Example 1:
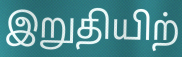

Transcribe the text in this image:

இறுதியிற்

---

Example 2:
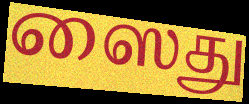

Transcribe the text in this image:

ஸைது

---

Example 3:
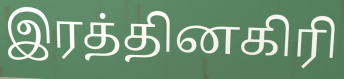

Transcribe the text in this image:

இரத்தினகிரி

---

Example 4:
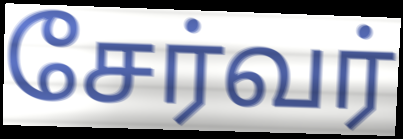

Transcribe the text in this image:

சேர்வர்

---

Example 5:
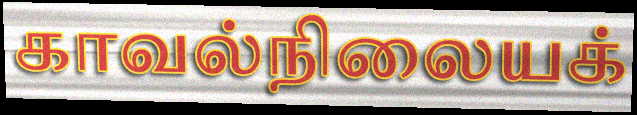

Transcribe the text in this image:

காவல்நிலையக்